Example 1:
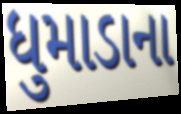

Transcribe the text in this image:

ધુમાડાના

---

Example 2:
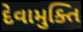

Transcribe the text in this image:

દેવામુક્તિ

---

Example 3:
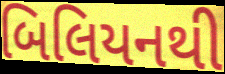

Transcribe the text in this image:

બિલિયનથી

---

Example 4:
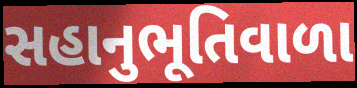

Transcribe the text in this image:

સહાનુભૂતિવાળા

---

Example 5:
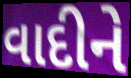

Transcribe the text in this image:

વાદીને